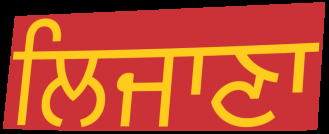
ਲਿਜਾਣਾ